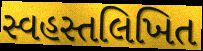
સ્વહસ્તલિખિત